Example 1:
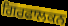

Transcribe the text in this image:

ਗਿਰਫਾਲਕਨ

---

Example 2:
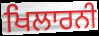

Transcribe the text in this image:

ਖਿਲਾਰਨੀ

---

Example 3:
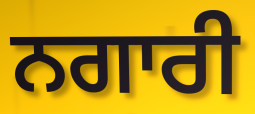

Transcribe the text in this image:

ਨਗਾਰੀ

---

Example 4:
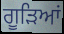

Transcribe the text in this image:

ਗੂੜਿਆਂ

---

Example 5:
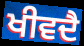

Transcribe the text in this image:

ਖੀਵਦੈ